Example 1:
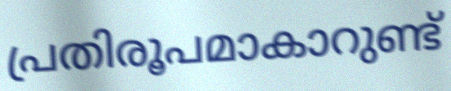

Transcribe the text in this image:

പ്രതിരൂപമാകാറുണ്ട്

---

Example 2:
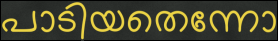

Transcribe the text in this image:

പാടിയതെന്നോ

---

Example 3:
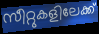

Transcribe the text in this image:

സീറ്റുകളിലേക്ക്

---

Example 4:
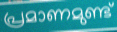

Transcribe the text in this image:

പ്രമാണമുണ്ട്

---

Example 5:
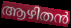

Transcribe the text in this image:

ആഴിതൻ